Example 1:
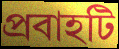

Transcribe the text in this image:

প্রবাহটি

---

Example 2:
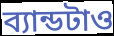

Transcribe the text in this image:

ব্যান্ডটাও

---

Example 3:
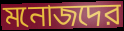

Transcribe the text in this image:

মনোজদের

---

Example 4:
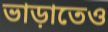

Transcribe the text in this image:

ভাড়াতেও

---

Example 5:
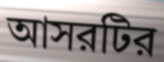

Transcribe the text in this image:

আসরটির